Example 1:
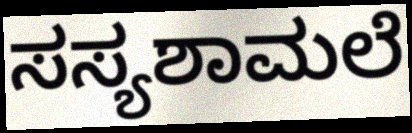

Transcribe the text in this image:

ಸಸ್ಯಶಾಮಲೆ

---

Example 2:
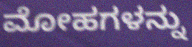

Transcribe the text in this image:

ಮೋಹಗಳನ್ನು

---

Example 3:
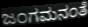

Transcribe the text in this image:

ಜಂಗಮನಂತೆ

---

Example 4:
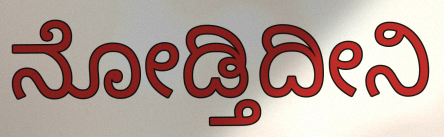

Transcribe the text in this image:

ನೋಡ್ತಿದೀನಿ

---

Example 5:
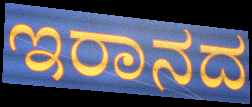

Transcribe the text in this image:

ಇರಾನದ